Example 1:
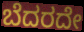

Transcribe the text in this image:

ಬೆದರದೇ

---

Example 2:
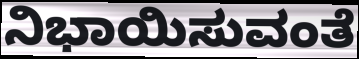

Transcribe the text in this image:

ನಿಭಾಯಿಸುವಂತೆ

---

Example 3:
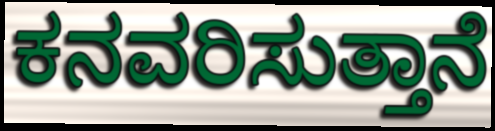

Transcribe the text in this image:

ಕನವರಿಸುತ್ತಾನೆ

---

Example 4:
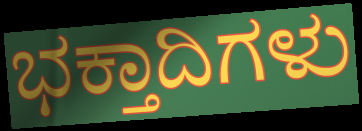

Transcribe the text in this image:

ಭಕ್ತಾದಿಗಳು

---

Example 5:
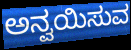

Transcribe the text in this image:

ಅನ್ವಯಿಸುವ